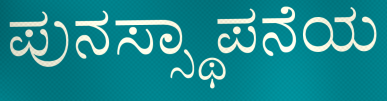
ಪುನಸ್ಸ್ಥಾಪನೆಯ